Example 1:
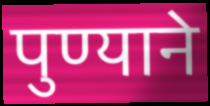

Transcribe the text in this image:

पुण्याने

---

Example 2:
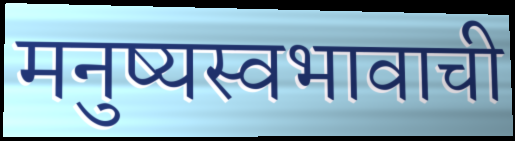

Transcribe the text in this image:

मनुष्यस्वभावाची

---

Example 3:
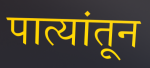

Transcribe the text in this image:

पात्यांतून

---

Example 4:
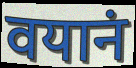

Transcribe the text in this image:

वयानं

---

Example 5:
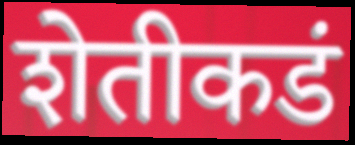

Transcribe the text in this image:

शेतीकडं